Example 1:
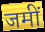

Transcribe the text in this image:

जमीं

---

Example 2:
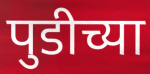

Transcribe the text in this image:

पुडीच्या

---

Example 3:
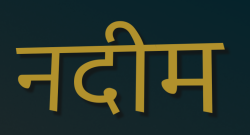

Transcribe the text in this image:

नदीम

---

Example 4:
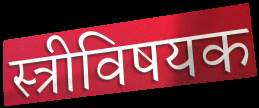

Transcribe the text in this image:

स्त्रीविषयक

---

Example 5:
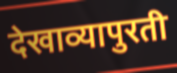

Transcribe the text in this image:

देखाव्यापुरती